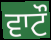
ਵਾਟੌ